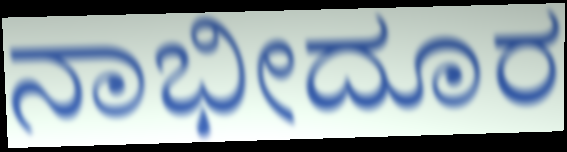
ನಾಭೀದೂರ